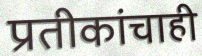
प्रतीकांचाही